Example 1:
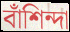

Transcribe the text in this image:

বাঁশিন্দা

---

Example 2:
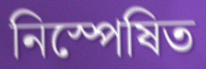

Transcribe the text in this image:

নিস্পেষিত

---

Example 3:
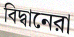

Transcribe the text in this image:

বিদ্বানেরা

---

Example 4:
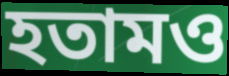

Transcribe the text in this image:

হতামও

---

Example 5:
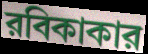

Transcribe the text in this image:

রবিকাকার